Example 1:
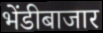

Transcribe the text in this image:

भेंडीबाजार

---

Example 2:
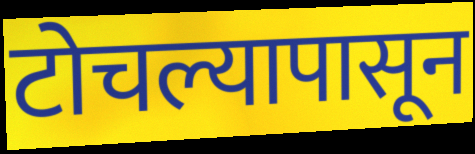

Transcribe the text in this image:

टोचल्यापासून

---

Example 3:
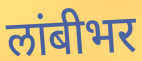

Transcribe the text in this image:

लांबीभर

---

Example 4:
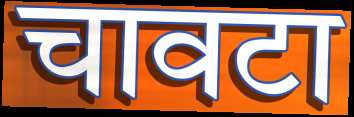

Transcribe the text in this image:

चावटा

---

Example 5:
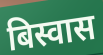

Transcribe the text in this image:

बिस्वास